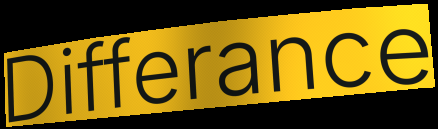
Differance